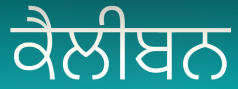
ਕੈਲੀਬਨ